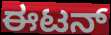
ಈಟನ್